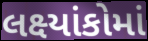
લક્ષ્યાંકોમાં